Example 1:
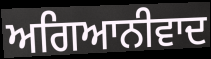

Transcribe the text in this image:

ਅਗਿਆਨੀਵਾਦ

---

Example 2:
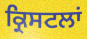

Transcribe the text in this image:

ਕ੍ਰਿਸਟਲਾਂ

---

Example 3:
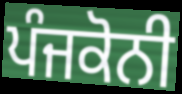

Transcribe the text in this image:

ਪੰਜਕੋਨੀ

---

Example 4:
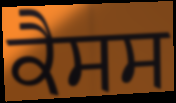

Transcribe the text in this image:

ਕੈਸਸ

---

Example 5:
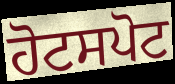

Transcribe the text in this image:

ਹੋਟਸਪੋਟ